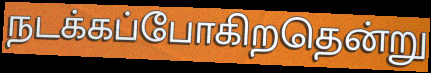
நடக்கப்போகிறதென்று